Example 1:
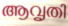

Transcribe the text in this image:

ആവൃതി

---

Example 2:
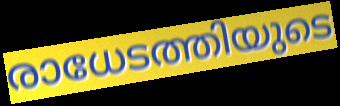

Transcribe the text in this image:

രാധേടത്തിയുടെ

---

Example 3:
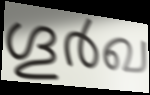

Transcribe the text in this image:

ഗൂർഖ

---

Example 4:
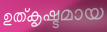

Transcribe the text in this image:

ഉത്കൃഷ്ടമായ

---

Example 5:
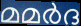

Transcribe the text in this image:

മമർദ